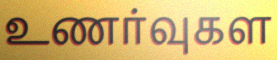
உணர்வுகள